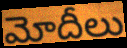
మోదీలు